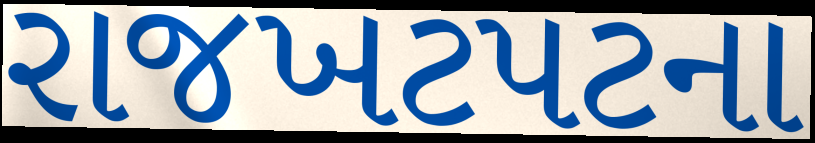
રાજખટપટના